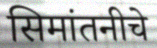
सिमांतनीचे